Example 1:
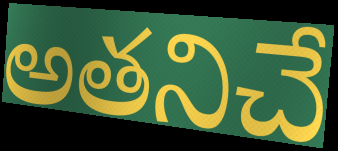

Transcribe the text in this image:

అతనిచే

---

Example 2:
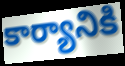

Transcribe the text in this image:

కార్యానికి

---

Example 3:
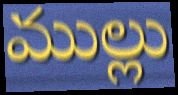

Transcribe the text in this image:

ముల్లు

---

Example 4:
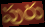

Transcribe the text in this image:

పురు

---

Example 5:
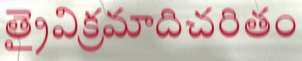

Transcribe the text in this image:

త్రైవిక్రమాదిచరితం